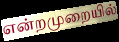
என்றமுறையில்